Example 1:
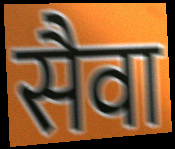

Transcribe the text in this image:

सैवा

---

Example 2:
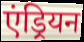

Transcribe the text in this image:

एंड्रियन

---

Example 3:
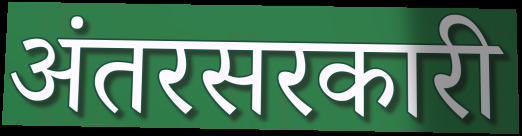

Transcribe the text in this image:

अंतरसरकारी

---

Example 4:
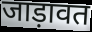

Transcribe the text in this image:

जाड़ावत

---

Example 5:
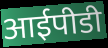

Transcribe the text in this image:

आईपीडी